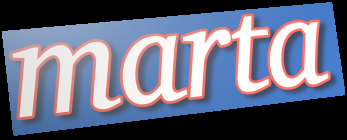
marta